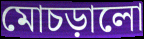
মোচড়ালো